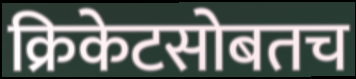
क्रिकेटसोबतच